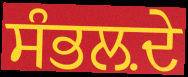
ਸੰਭਲ਼ਦੇ